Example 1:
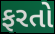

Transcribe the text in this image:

ફરતો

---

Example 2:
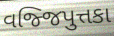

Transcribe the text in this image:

વજ્જિપુત્તકા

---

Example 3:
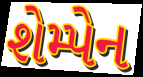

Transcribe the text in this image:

શેમ્પેન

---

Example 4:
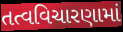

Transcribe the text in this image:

તત્વવિચારણામાં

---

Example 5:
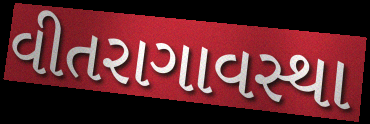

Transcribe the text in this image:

વીતરાગાવસ્થા